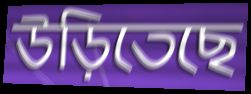
উড়িতেছে